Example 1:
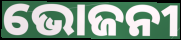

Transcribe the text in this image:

ଭୋଜନୀ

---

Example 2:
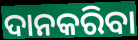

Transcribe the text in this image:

ଦାନକରିବା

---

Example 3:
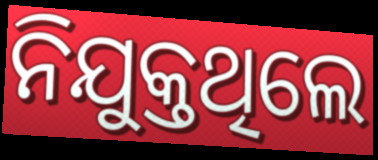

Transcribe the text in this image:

ନିଯୁକ୍ତଥିଲେ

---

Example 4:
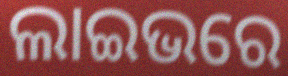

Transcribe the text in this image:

ଲାଇଭରେ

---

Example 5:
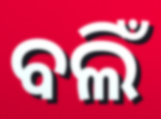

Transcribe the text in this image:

ବଲିଁ